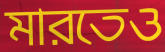
মারতেও